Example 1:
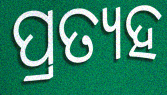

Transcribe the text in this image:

ପ୍ରତ୍ଯହ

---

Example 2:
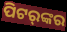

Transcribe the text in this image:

ପିଟର୍‌ଙ୍କର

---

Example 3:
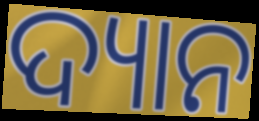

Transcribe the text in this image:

ଦ୍ୟାନ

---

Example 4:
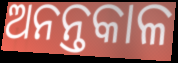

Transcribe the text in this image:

ଅନନ୍ତକାଳ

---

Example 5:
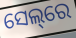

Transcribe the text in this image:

ସେଲ୍‌ରେ